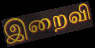
இறைவி